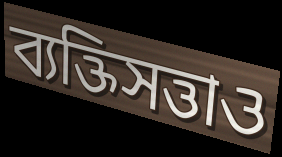
ব্যক্তিসত্তাও